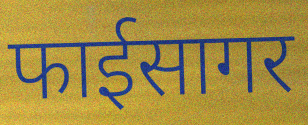
फाईसागर